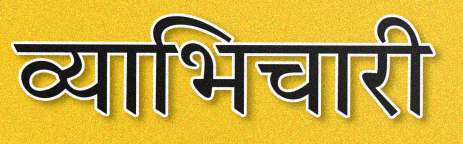
व्याभिचारी